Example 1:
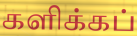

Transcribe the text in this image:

களிக்கப்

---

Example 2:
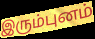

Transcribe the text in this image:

இரும்புனம்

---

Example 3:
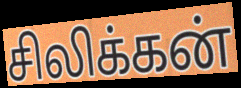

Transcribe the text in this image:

சிலிக்கன்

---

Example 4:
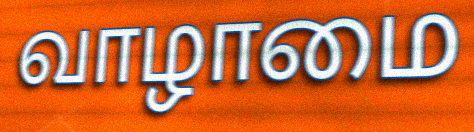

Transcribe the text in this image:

வாழாமை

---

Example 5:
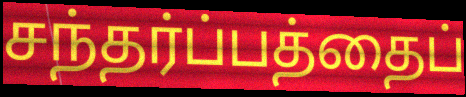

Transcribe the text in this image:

சந்தர்ப்பத்தைப்